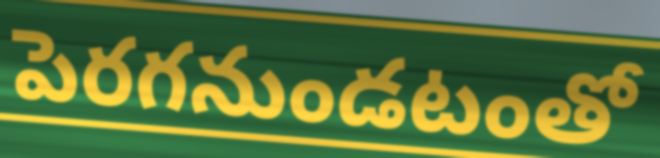
పెరగనుండటంతో